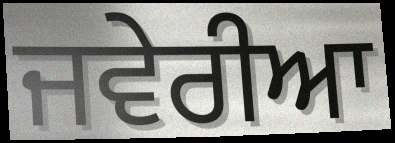
ਜਵੇਰੀਆ